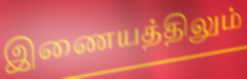
இணையத்திலும்